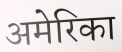
अमेरिका